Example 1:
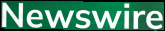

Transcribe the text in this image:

Newswire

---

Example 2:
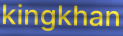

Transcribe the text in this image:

kingkhan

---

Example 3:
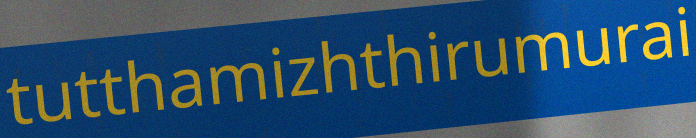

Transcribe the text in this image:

tutthamizhthirumurai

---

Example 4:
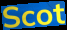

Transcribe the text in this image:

Scot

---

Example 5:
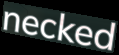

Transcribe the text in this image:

necked